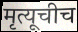
मृत्यूचीच